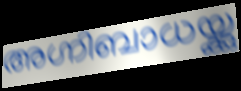
അഗ്നിബാധയ്ക്കു